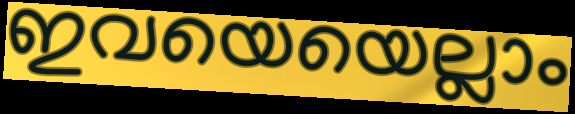
ഇവയെയെല്ലാം